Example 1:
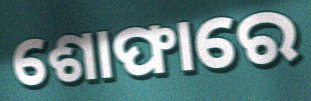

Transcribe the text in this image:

ଶୋଫାରେ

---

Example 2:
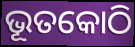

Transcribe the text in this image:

ଭୂତକୋଠି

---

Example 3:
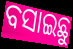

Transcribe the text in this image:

ବସାଇଛୁ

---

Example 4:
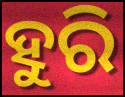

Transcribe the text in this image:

ହୁରି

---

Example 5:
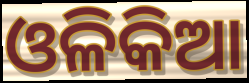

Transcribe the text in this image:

ଓଳିକିଆ